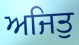
ਅਜਿਤੁ